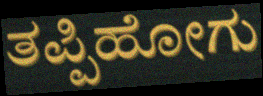
ತಪ್ಪಿಹೋಗು